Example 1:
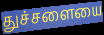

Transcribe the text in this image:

துச்சளையை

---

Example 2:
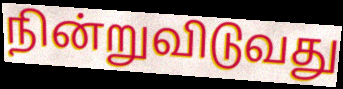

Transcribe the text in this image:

நின்றுவிடுவது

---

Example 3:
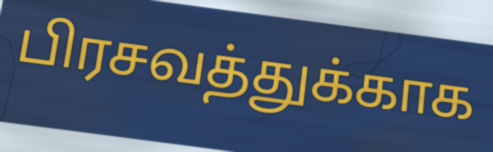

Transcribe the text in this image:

பிரசவத்துக்காக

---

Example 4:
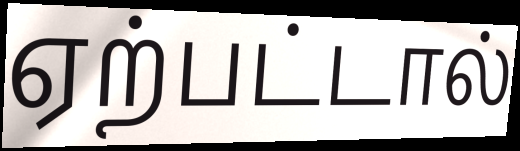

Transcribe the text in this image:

ஏற்பட்டால்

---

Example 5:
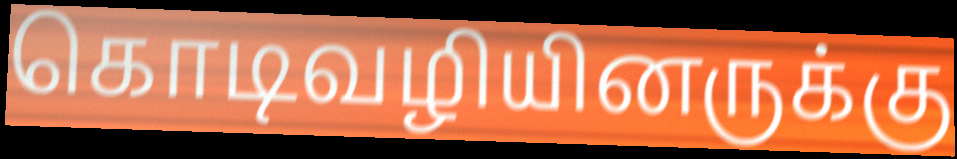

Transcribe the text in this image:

கொடிவழியினருக்கு